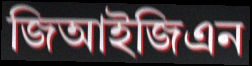
জিআইজিএন